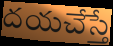
దయచేస్తే